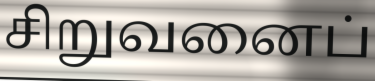
சிறுவனைப்